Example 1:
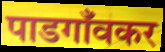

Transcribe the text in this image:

पाडगाँवकर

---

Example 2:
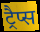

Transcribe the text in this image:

ट्रैप्स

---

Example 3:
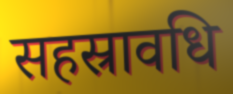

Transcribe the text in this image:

सहस्रावधि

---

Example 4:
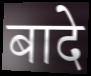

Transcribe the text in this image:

बादे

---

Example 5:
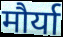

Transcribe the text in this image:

मौर्या